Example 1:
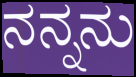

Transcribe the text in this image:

ನನ್ನನು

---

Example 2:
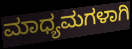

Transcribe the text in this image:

ಮಾಧ್ಯಮಗಳಾಗಿ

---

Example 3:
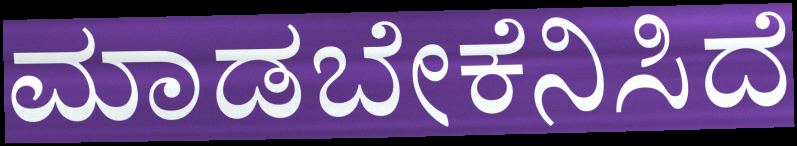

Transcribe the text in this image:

ಮಾಡಬೇಕೆನಿಸಿದೆ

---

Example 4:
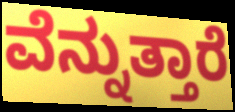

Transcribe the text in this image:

ವೆನ್ನುತ್ತಾರೆ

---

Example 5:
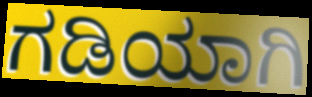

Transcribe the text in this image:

ಗಡಿಯಾಗಿ